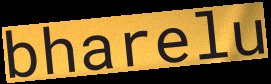
bharelu